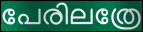
പേരിലത്രേ